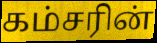
கம்சரின்